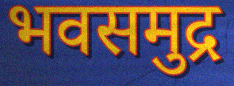
भवसमुद्र